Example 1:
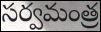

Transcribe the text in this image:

సర్వమంత్ర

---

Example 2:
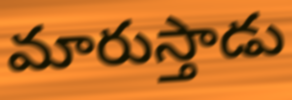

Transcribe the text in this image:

మారుస్తాడు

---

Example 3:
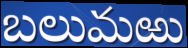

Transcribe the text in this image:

బలుమఱు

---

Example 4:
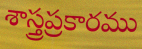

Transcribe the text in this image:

శాస్త్రప్రకారము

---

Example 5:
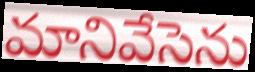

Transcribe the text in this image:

మానివేసెను